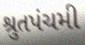
શ્રુતપંચમી